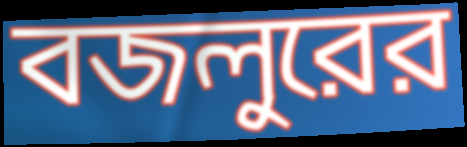
বজলুরের